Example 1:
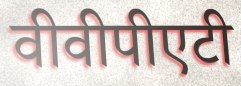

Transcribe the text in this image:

वीवीपीएटी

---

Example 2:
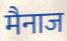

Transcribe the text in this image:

मैनाज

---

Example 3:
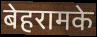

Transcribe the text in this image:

बेहरामके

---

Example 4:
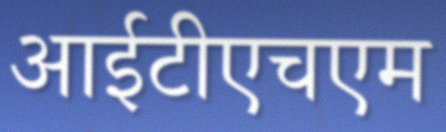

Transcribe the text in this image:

आईटीएचएम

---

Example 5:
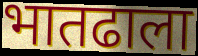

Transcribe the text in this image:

भातढाला